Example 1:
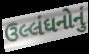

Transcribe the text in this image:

ઉલ્લંઘનોનું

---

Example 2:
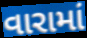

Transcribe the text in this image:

વારામાં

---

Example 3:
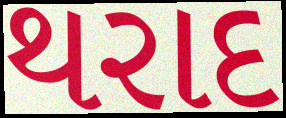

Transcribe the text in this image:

થરાદ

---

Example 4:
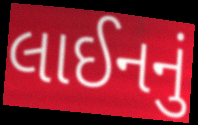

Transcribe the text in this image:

લાઈનનું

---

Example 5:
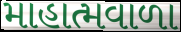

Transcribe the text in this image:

માહાત્મવાળા